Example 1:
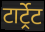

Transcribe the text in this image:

टार्ट्रेट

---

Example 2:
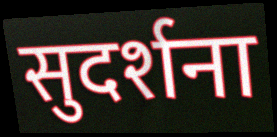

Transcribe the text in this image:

सुदर्शना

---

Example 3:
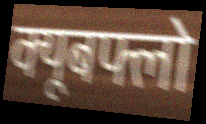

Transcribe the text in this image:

क्यूबफ्लो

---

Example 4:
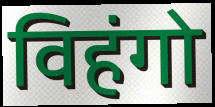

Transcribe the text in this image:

विहंगो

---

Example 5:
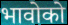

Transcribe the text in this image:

भावोको